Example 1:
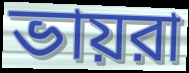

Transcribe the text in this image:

ভায়রা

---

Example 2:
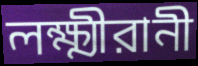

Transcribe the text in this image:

লক্ষ্মীরানী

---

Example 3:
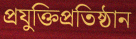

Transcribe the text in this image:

প্রযুক্তিপ্রতিষ্ঠান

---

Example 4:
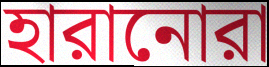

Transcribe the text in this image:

হারানোরা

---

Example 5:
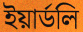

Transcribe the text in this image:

ইয়ার্ডলি